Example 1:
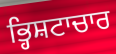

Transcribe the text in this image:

ਭ੍ਹਿਸ਼ਟਾਚਾਰ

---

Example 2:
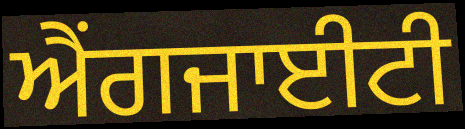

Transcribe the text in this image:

ਐਂਗਜਾਈਟੀ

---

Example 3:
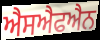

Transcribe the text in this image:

ਐਸਐਫਐਨ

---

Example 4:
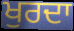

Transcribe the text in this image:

ਖੁਰਦਾ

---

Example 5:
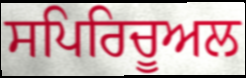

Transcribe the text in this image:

ਸਪਿਰਿਚੂਅਲ